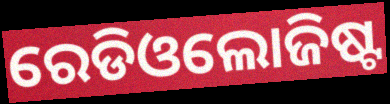
ରେଡିଓଲୋଜିଷ୍ଟ